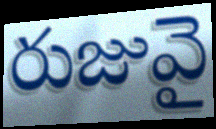
రుజువై